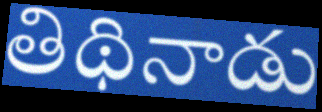
తిథినాడు